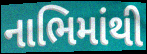
નાભિમાંથી